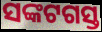
ସଙ୍କଟଗସ୍ତ